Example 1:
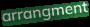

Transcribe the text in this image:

arrangment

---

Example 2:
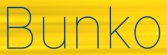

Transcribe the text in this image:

Bunko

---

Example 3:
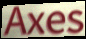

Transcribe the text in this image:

Axes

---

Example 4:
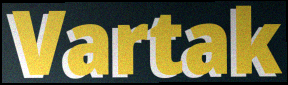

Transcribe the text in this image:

Vartak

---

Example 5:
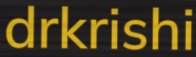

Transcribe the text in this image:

drkrishi